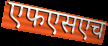
एफएसएच